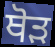
ਥੋੜ